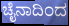
ಚೈನಾದಿಂದ